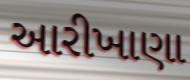
આરીખાણા